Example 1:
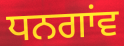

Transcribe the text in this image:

ਧਨਗਾਂਵ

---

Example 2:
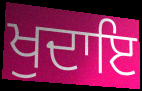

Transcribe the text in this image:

ਖੁਦਾਇ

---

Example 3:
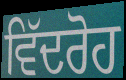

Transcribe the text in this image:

ਵਿੱਦਰੋਹ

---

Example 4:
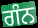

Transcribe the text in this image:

ਗੰਨ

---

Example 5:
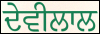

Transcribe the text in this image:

ਦੇਵੀਲਾਲ